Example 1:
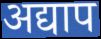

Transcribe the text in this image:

अद्याप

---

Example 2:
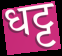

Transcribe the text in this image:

धट्ट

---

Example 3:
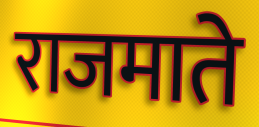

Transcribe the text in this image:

राजमाते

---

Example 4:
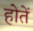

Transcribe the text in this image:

होतें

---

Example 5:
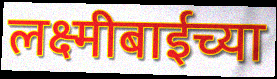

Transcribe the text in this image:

लक्ष्मीबाईच्या